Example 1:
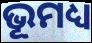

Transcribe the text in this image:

ଭୂମଧ୍ୟ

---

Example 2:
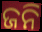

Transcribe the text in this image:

ଜନି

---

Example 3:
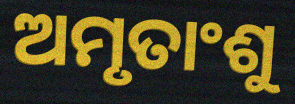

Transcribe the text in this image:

ଅମୃତାଂଶୁ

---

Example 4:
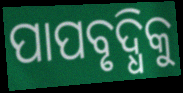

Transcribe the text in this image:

ପାପବୃଦ୍ଧିକୁ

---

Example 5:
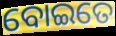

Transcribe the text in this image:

ବୋଇତେ